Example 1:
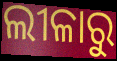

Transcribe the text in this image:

ଲୀଳାରୁ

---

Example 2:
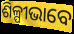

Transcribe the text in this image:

ଶିଳ୍ପୀଭାବେ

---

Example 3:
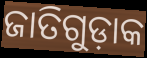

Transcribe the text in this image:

ଜାତିଗୁଡ଼ାକ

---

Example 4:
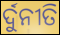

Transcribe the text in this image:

ର୍ଦୁନୀତି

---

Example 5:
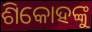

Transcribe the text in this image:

ଶିକୋହଙ୍କୁ